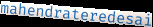
mahendrateredesai